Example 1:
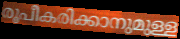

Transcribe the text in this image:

രൂപീകരിക്കാനുമുള്ള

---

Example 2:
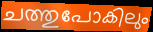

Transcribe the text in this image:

ചത്തുപോകിലും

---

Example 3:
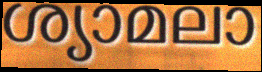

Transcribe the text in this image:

ശ്യാമലാ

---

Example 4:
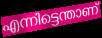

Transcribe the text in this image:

എന്നിട്ടെന്താണ്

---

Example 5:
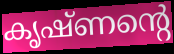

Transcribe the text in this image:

കൃഷ്ണന്റെ